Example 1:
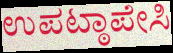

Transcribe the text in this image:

ಉಪಟ್ಠಾಪೇಸಿ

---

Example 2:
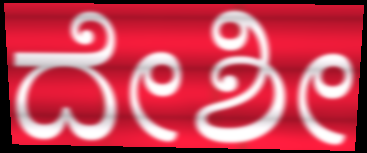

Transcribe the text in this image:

ದೇಶೀ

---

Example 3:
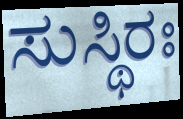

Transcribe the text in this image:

ಸುಸ್ಥಿರಃ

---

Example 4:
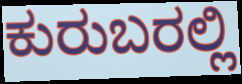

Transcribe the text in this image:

ಕುರುಬರಲ್ಲಿ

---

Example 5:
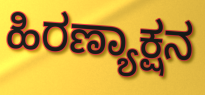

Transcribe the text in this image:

ಹಿರಣ್ಯಾಕ್ಷನ